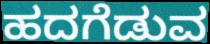
ಹದಗೆಡುವ